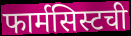
फार्मसिस्टची